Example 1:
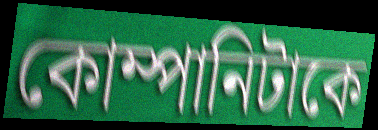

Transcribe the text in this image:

কোম্পানিটাকে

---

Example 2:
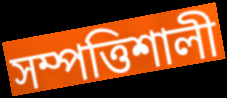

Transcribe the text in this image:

সম্পত্তিশালী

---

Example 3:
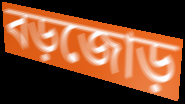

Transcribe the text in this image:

বড়জোড়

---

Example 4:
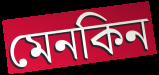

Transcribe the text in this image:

মেনকিন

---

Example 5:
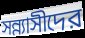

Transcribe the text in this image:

সন্ন্যাসীদের